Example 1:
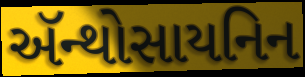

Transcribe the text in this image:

ઍન્થોસાયનિન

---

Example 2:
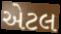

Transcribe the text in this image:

એટલ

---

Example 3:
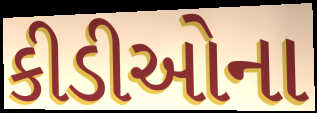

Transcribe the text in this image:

કીડીઓના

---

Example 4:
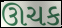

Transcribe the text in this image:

ઊચક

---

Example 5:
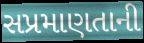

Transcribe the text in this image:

સપ્રમાણતાની